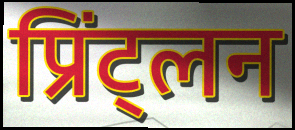
प्रिंट्लन